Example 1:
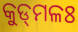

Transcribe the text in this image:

କୁଡ୍‌ମଳଃ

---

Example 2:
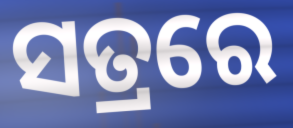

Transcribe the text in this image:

ସତ୍ରରେ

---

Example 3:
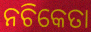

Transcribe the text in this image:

ନଚିକେତା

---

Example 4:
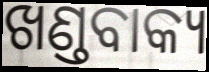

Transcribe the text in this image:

ଖଣ୍ଡବାକ୍ୟ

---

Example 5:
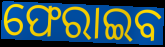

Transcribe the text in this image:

ଫେରାଇବ